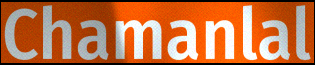
Chamanlal